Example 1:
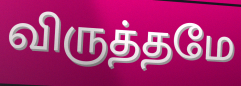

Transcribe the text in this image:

விருத்தமே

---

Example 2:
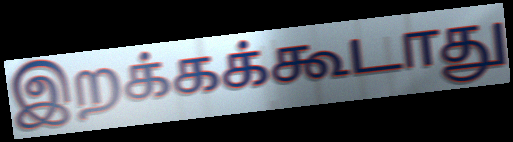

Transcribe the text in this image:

இறக்கக்கூடாது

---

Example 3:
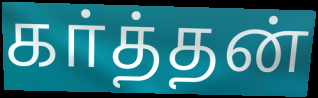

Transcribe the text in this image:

கர்த்தன்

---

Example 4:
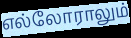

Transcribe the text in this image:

எல்லோராலும்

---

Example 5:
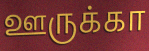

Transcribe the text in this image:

ஊருக்கா